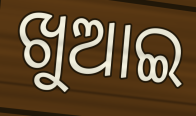
ଖୁଆଇ